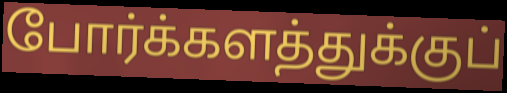
போர்க்களத்துக்குப்